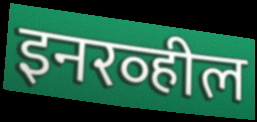
इनरव्हील